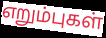
எறும்புகள்